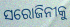
ସରୋଜିନୀକୁ